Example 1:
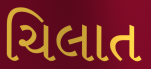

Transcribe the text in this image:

ચિલાત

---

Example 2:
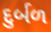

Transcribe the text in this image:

દુર્બળ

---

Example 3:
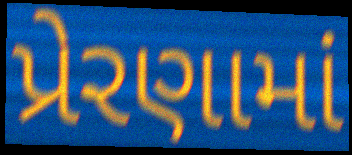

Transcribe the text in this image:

પ્રેરણામાં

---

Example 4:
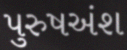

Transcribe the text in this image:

પુરુષઅંશ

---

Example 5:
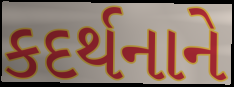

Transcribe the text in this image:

કદર્થનાને